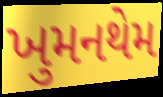
ખુમનથેમ